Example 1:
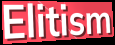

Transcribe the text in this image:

Elitism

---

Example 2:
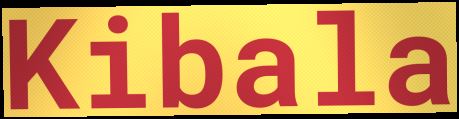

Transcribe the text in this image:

Kibala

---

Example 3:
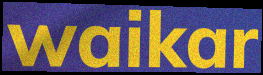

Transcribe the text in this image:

waikar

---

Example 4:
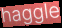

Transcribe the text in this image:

haggle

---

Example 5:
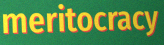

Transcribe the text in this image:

meritocracy